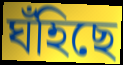
ঘঁহিছে